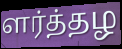
ளர்த்தழ